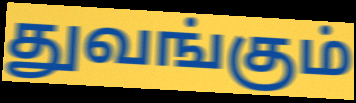
துவங்கும்